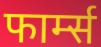
फार्म्स